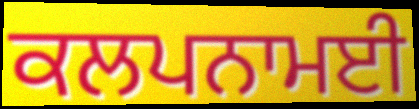
ਕਲਪਨਾਮਈ